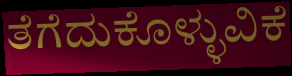
ತೆಗೆದುಕೊಳ್ಳುವಿಕೆ